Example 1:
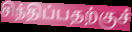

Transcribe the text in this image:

சிந்திப்பதற்குச்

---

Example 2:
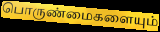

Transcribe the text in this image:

பொருண்மைகளையும்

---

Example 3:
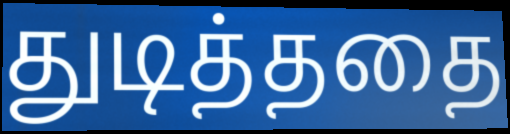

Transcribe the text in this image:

துடித்ததை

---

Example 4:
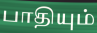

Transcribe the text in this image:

பாதியும்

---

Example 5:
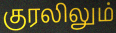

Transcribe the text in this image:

குரலிலும்